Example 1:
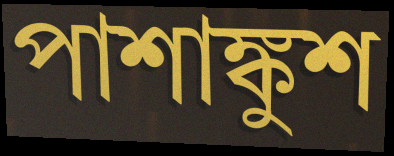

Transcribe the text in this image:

পাশাঙ্কুশ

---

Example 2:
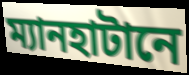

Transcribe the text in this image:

ম্যানহাটানে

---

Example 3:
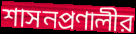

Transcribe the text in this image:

শাসনপ্রণালীর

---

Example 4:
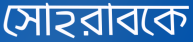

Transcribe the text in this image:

সোহরাবকে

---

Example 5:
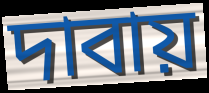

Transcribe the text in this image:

দাবায়